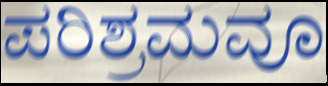
ಪರಿಶ್ರಮವೂ